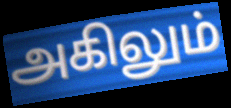
அகிலும்